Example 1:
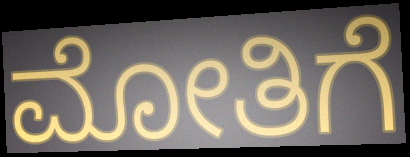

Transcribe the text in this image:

ಮೋತಿಗೆ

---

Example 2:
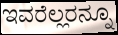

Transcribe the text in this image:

ಇವರೆಲ್ಲರನ್ನೂ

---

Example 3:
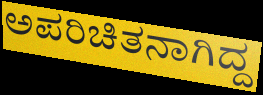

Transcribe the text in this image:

ಅಪರಿಚಿತನಾಗಿದ್ದ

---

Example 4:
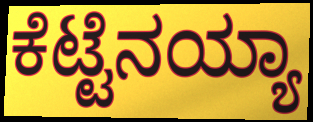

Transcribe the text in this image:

ಕೆಟ್ಟೆನಯ್ಯಾ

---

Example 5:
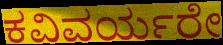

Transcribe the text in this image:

ಕವಿವರ್ಯರೇ